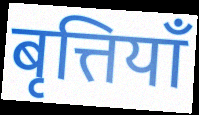
बृत्तियाँ